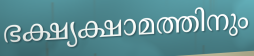
ഭക്ഷ്യക്ഷാമത്തിനും